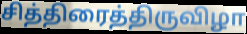
சித்திரைத்திருவிழா